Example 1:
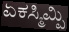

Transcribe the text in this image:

ಏಕಸ್ಮಿಮ್ಪಿ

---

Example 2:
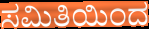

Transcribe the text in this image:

ಸಮಿತಿಯಿಂದ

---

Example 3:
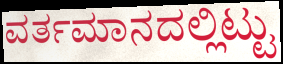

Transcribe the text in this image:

ವರ್ತಮಾನದಲ್ಲಿಟ್ಟು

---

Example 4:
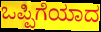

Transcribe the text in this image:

ಒಪ್ಪಿಗೆಯಾದ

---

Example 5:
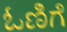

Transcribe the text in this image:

ಓಣಿಗೆ